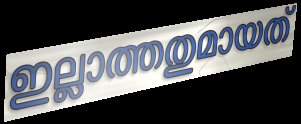
ഇല്ലാത്തതുമായത്